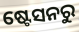
ଷ୍ଟେସନରୁ